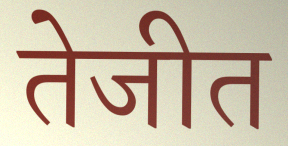
तेजीत